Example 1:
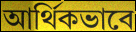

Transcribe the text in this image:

আৰ্থিকভাবে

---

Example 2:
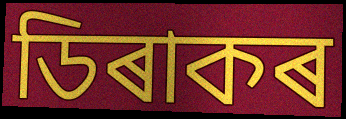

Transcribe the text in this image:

ডিৰাকৰ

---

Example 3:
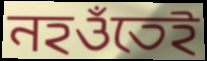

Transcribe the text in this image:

নহওঁতেই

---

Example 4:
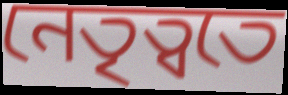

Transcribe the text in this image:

নেতৃত্বতে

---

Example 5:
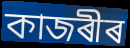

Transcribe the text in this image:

কাজৰীৰ